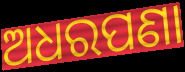
ଅଧରପଣା